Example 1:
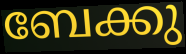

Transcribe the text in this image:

ബേക്കു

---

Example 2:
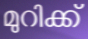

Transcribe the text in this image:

മുറിക്ക്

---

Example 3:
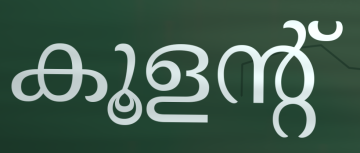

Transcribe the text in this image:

കൂളന്റ്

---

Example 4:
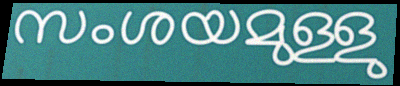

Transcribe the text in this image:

സംശയമുള്ളു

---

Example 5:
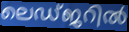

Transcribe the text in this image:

ലെഡ്ജറിൽ